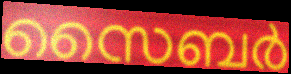
സൈബർ